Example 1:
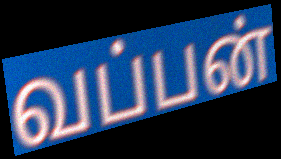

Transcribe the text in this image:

வப்பன்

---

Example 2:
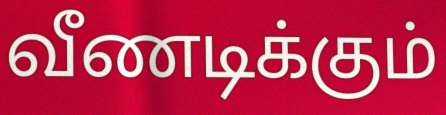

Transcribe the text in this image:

வீணடிக்கும்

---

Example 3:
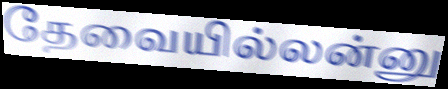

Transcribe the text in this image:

தேவையில்லன்னு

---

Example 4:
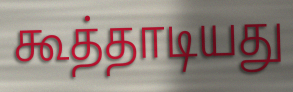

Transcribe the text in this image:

கூத்தாடியது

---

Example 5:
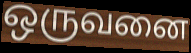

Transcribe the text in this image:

ஒருவனை